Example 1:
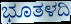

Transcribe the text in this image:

ಭೂತಳದಿ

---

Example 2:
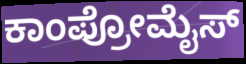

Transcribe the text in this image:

ಕಾಂಪ್ರೋಮೈಸ್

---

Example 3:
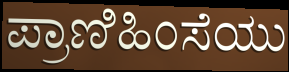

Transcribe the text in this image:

ಪ್ರಾಣಿಹಿಂಸೆಯು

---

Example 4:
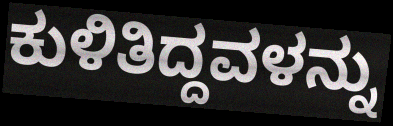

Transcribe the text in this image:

ಕುಳಿತಿದ್ದವಳನ್ನು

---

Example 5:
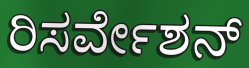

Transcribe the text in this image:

ರಿಸರ್ವೇಶನ್